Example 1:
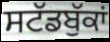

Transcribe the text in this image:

ਸਟੱਡਬੁੱਕਾਂ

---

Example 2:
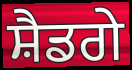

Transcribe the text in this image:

ਸ਼ੈਡਗੇ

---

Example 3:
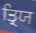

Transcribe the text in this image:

ਤ੍ਰਿਯ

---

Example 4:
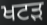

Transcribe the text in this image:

ਖਟੜ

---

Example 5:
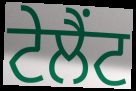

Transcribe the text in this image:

ਟੇਲੈਂਟ